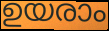
ഉയരാം